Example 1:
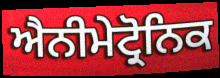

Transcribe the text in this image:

ਐਨੀਮੇਟ੍ਰੋਨਿਕ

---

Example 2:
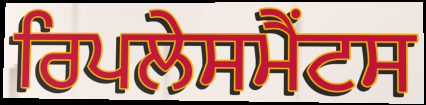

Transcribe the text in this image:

ਰਿਪਲੇਸਮੈਂਟਸ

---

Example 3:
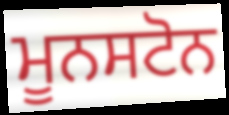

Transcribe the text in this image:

ਮੂਨਸਟੋਨ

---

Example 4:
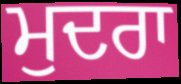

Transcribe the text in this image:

ਮੁਦਰਾ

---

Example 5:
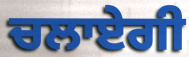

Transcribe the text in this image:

ਚਲਾਏਗੀ